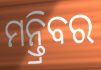
ମନ୍ତ୍ରିବର